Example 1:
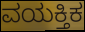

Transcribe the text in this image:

ವಯಕ್ತಿಕ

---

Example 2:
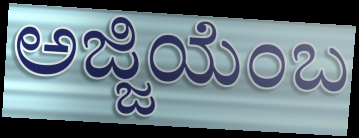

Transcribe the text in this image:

ಅಜ್ಜಿಯೆಂಬ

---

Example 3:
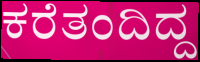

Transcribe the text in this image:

ಕರೆತಂದಿದ್ದ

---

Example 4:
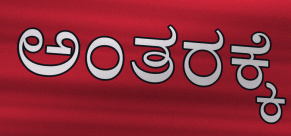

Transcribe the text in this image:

ಅಂತರಕ್ಕೆ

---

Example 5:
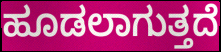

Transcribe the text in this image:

ಹೂಡಲಾಗುತ್ತದೆ